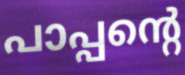
പാപ്പന്റെ